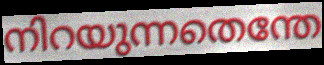
നിറയുന്നതെന്തേ